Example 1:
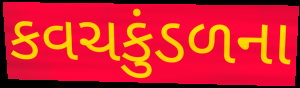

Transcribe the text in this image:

કવચકુંડળના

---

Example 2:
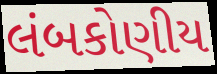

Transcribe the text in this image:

લંબકોણીય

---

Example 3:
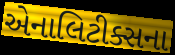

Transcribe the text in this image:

એનાલિટીક્સના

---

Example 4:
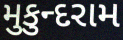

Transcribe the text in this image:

મુકુન્દરામ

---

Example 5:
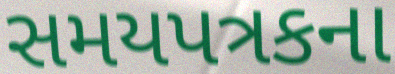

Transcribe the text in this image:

સમયપત્રકના